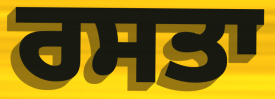
ਰਸਤਾ